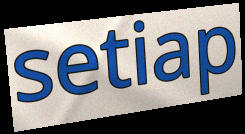
setiap